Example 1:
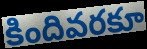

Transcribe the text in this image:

కిందివరకూ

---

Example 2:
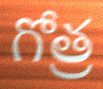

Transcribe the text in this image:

గోత్ర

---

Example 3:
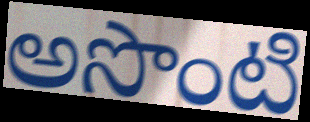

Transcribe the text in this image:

అసొంటి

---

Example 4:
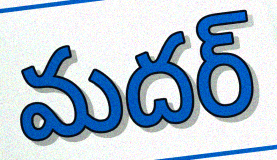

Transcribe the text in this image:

మదర్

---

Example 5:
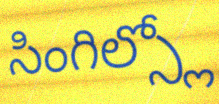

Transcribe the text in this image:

సింగిల్స్లో